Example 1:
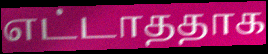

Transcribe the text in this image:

எட்டாததாக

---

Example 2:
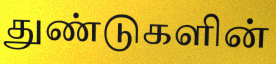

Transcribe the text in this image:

துண்டுகளின்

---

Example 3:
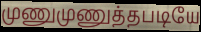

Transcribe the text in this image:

முணுமுணுத்தபடியே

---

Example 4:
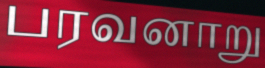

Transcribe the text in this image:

பரவனாறு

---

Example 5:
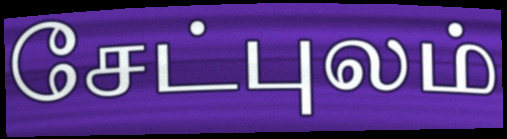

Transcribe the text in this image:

சேட்புலம்